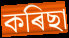
কৰিছা